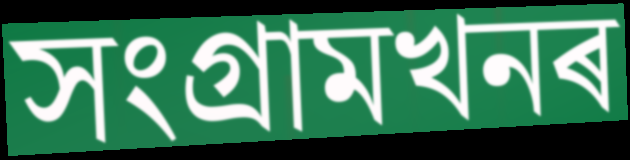
সংগ্ৰামখনৰ